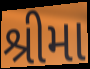
શ્રીમા